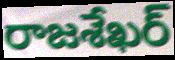
రాజశేఖర్